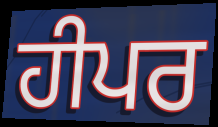
ਹੀਪਰ